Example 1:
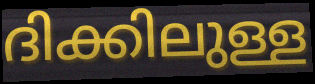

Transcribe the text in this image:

ദിക്കിലുള്ള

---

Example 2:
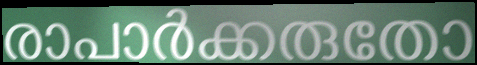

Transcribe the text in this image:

രാപാർക്കരുതോ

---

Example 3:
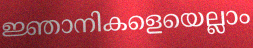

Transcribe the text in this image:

ജ്ഞാനികളെയെല്ലാം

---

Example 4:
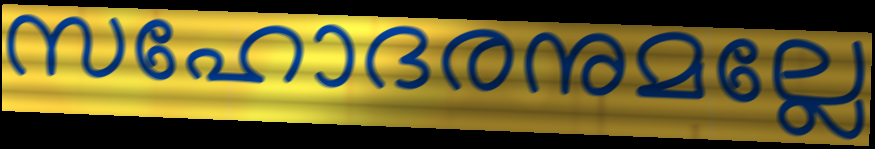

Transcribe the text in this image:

സഹോദരനുമല്ലേ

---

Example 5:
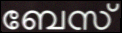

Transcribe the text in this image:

ബേസ്